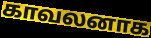
காவலனாக